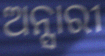
ଅନ୍ସାରୀ